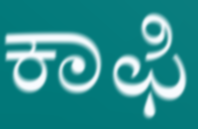
ಕಾಫಿ